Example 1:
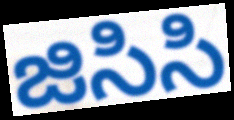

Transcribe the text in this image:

జిసిసి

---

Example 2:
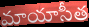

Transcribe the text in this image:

మాయాసీత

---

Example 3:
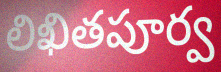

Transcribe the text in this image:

లిఖితపూర్వ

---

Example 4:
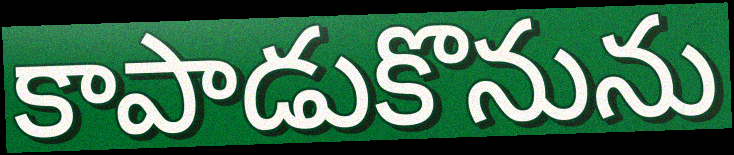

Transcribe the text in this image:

కాపాడుకొనును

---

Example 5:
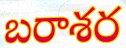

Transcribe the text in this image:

బరాశర